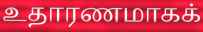
உதாரணமாகக்